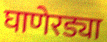
घाणेरड्या